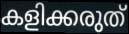
കളിക്കരുത്